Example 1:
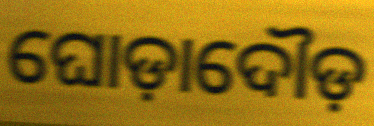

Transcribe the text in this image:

ଘୋଡ଼ାଦୌଡ଼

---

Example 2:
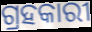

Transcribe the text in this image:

ଗ୍ରହକାରୀ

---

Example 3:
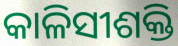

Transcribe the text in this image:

କାଳିସୀଶକ୍ତି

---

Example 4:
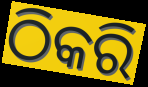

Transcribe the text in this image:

ଠିକରି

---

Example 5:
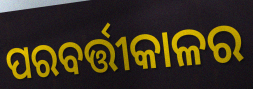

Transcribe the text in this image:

ପରବର୍ତ୍ତୀକାଳର